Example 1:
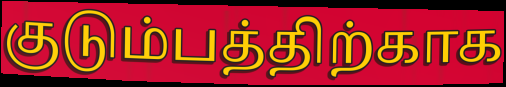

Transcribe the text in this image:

குடும்பத்திற்காக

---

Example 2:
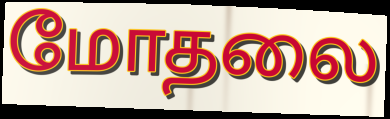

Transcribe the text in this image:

மோதலை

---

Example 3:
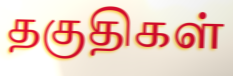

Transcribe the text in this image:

தகுதிகள்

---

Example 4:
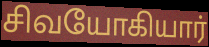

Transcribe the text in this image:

சிவயோகியார்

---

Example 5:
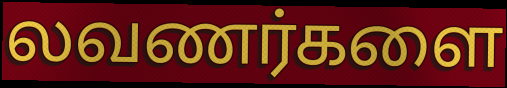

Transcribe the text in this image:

லவணர்களை